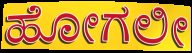
ಹೋಗಲೀ